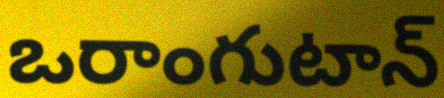
ఒరాంగుటాన్